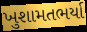
ખુશામતભર્યા